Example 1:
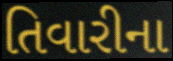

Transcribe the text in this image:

તિવારીના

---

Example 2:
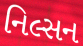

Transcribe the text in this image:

નિલ્સન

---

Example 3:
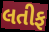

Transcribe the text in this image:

લતીફ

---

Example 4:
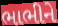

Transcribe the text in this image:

ભાભીને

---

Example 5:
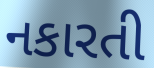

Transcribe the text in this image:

નકારતી